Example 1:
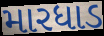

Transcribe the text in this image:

મારધાડ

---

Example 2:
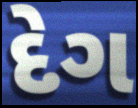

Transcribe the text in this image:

દેગ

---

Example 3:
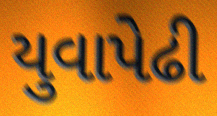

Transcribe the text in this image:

યુવાપેઢી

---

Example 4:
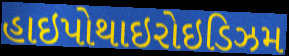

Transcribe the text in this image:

હાઇપોથાઇરોઇડિઝમ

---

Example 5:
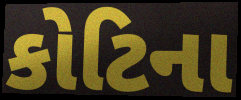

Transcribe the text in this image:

કોટિના